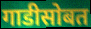
गाडीसोबत